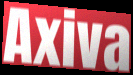
Axiva